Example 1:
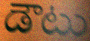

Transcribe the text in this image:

డౌటు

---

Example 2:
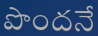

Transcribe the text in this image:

పొందనే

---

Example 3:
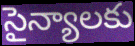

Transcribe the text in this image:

సైన్యాలకు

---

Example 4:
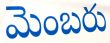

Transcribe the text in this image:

మెంబరు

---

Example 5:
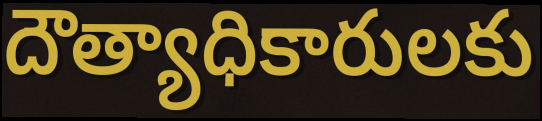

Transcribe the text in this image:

దౌత్యాధికారులకు